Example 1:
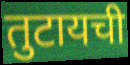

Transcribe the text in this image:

तुटायची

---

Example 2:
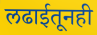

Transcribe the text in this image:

लढाईतूनही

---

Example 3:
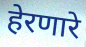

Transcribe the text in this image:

हेरणारे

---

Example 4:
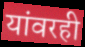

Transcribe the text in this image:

यांवरही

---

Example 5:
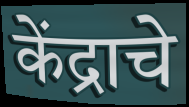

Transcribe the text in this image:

केंद्राचे